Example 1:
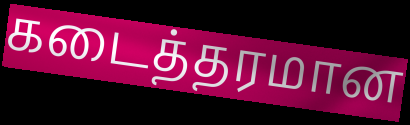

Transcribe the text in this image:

கடைத்தரமான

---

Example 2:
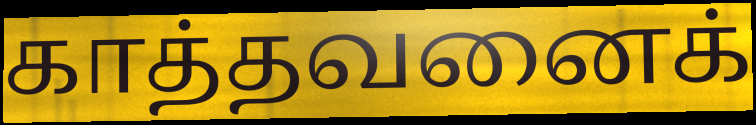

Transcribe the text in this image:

காத்தவனைக்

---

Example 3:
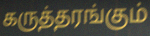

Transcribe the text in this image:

கருத்தரங்கும்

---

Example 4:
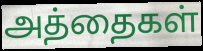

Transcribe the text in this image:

அத்தைகள்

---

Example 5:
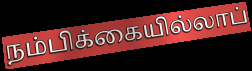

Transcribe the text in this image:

நம்பிக்கையில்லாப்